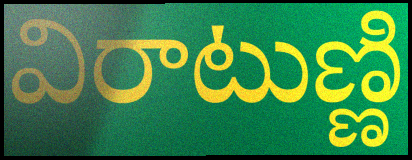
విరాటుణ్ణి